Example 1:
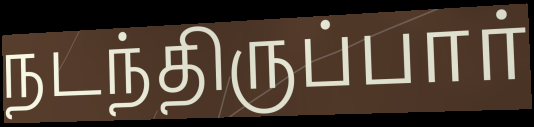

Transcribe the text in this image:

நடந்திருப்பார்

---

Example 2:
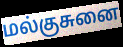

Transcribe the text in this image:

மல்குசுனை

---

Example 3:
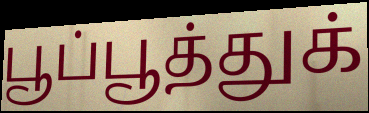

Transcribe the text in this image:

பூப்பூத்துக்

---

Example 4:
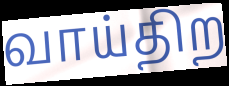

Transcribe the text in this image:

வாய்திற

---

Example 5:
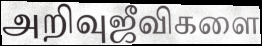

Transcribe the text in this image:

அறிவுஜீவிகளை